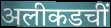
अलीकडचीं